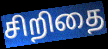
சிறிதை